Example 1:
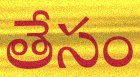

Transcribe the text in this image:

తేసం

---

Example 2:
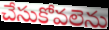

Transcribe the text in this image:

చేసుకోవలెను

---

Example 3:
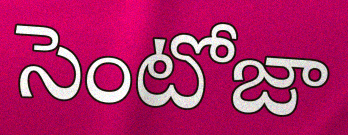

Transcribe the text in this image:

సెంటోజా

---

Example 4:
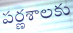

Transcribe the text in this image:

పర్ణశాలకు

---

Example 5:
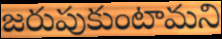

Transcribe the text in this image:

జరుపుకుంటామని